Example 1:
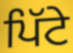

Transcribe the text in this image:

ਪਿੱਟੇ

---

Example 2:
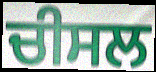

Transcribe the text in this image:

ਚੀਸਲ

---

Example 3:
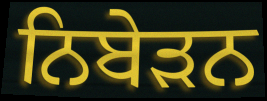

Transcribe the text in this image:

ਨਿਬੇੜਨ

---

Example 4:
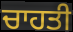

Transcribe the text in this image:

ਚਾਹਤੀ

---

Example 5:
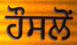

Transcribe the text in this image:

ਹੌਸਲੋਂ